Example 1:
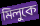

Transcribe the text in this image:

মিলুকে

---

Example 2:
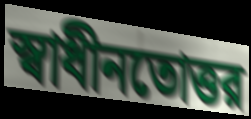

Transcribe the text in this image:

স্বাধীনতোত্তর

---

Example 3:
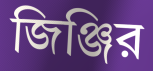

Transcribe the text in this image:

জিঞ্জির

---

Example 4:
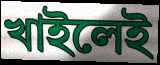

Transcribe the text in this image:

খাইলেই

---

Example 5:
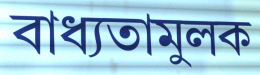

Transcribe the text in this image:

বাধ্যতামুলক